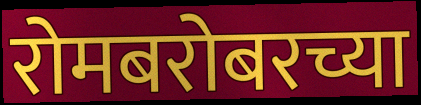
रोमबरोबरच्या